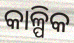
କାଳ୍ପିକ